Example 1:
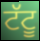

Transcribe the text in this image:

ਟੱਟੂ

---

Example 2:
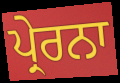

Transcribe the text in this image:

ਪ੍ਰੇਰਨਾ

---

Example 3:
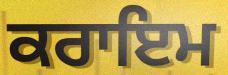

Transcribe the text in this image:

ਕਰਾਇਮ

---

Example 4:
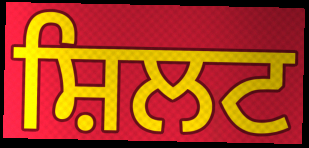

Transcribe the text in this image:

ਸ਼ਿਲਟ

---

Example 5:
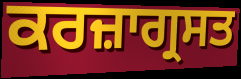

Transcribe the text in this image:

ਕਰਜ਼ਾਗ੍ਰਸਤ